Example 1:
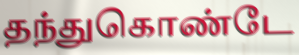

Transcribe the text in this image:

தந்துகொண்டே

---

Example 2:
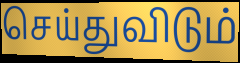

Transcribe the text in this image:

செய்துவிடும்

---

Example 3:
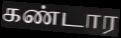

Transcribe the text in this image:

கண்டார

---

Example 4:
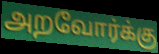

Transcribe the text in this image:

அறவோர்க்கு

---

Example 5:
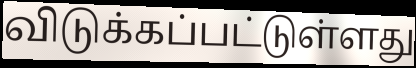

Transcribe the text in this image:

விடுக்கப்பட்டுள்ளது